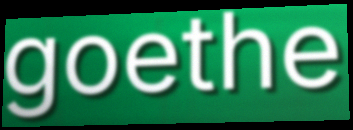
goethe